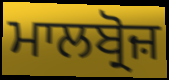
ਮਾਲਬ੍ਰੋਜ਼